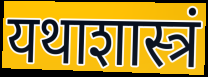
यथाशास्त्रं